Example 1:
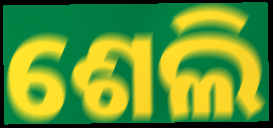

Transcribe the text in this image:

ଶେଲି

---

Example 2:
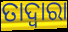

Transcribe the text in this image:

ତାଦ୍ବାରା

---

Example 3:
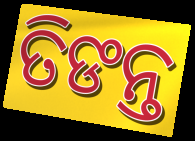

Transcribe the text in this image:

ତିଙନ୍ତ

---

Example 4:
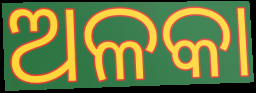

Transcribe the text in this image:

ଅଳକା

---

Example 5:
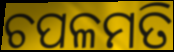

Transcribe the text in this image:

ଚପଳମତି